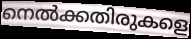
നെൽക്കതിരുകളെ